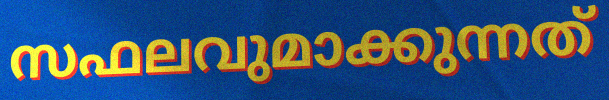
സഫലവുമാക്കുന്നത്